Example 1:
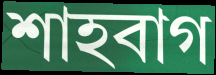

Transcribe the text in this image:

শাহবাগ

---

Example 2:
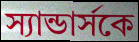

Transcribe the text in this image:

স্যান্ডার্সকে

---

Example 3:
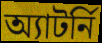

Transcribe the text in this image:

অ্যাটর্নি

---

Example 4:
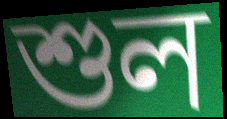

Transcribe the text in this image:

শুল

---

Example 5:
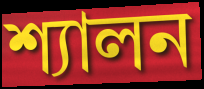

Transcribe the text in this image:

শ্যালন